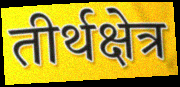
तीर्थक्षेत्र